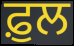
ਫ਼ੁਲ